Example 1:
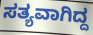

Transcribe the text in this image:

ಸತ್ಯವಾಗಿದ್ದ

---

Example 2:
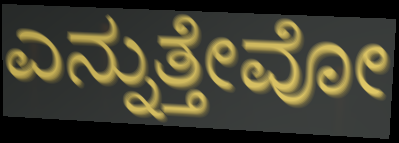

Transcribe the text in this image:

ಎನ್ನುತ್ತೇವೋ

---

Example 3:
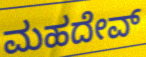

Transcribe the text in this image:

ಮಹದೇವ್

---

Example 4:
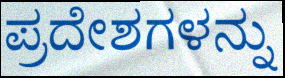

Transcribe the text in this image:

ಪ್ರದೇಶಗಳನ್ನು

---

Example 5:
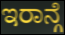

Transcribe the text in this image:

ಇರಾನ್ಗೆ